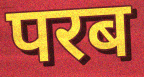
परब